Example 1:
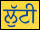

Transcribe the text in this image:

ਲੁੱਟੀ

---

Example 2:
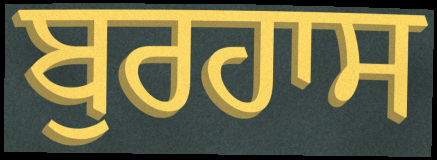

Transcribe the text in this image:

ਬੁਰਹਾਸ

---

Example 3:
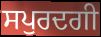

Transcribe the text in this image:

ਸਪੁਰਦਗੀ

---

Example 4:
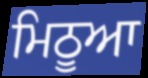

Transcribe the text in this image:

ਮਿਠੂਆ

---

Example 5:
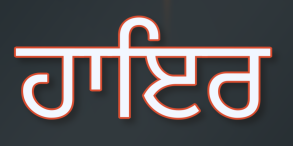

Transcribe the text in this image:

ਹਾਇਰ